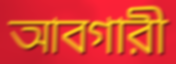
আবগারী